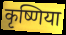
कृष्णिया